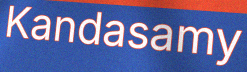
Kandasamy